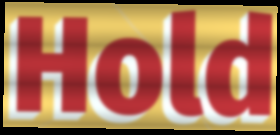
Hold